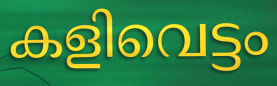
കളിവെട്ടം